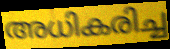
അധികരിച്ച